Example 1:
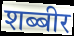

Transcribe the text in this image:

शब्बीर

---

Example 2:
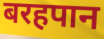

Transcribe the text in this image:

बरहपान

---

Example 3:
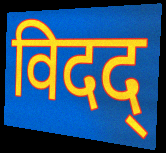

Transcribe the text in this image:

विदद्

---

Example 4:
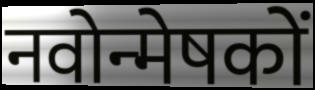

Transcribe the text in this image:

नवोन्‍मेषकों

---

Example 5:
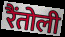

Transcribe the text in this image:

रैंतोली